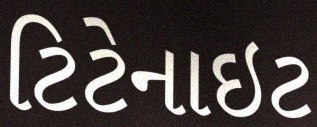
ટિટેનાઇટ